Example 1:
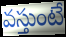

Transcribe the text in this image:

వస్తుంటే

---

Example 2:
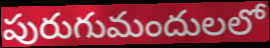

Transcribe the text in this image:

పురుగుమందులలో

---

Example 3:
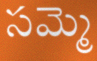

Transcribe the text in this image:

సమ్మె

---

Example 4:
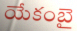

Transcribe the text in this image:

యేకంబై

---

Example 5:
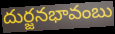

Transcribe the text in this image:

దుర్జనభావంబు